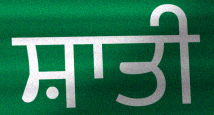
ਸ਼ਾਤੀ